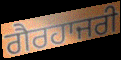
ਗੈਰਹਾਜਰੀ